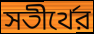
সতীর্থের